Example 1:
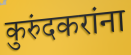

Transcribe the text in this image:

कुरुंदकरांना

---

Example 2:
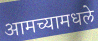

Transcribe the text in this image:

आमच्यामधले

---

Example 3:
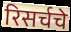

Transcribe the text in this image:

रिसर्चचे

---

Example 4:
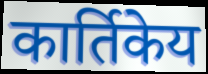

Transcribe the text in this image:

कार्तिकेय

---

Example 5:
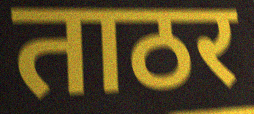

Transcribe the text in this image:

ताठर